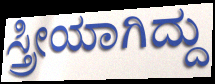
ಸ್ತ್ರೀಯಾಗಿದ್ದು